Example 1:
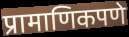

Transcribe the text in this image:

प्रामाणिकपणे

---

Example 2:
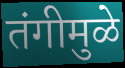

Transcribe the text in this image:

तंगीमुळे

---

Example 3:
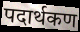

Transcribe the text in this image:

पदार्थकण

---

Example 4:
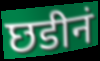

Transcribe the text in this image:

छडीनं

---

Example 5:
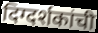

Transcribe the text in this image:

दिग्दर्शकांची